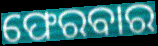
ଫେରବାର